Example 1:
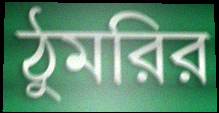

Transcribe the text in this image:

ঠুমরির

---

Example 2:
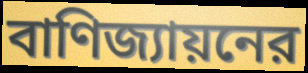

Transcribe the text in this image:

বাণিজ্যায়নের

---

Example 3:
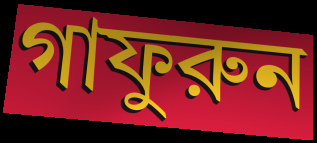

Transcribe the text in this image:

গাফুরুন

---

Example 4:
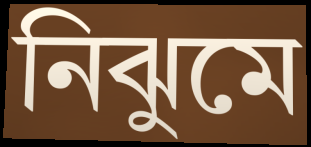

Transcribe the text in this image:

নিঝুমে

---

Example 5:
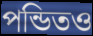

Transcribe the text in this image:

পন্ডিতও